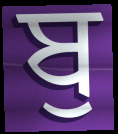
ਬੁ